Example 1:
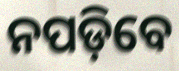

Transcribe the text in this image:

ନପଡ଼ିବେ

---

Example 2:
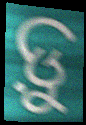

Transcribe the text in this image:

ଡ଼ୁ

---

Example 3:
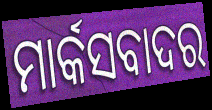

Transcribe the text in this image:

ମାର୍କସବାଦର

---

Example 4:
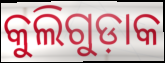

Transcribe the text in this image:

କୁଲିଗୁଡ଼ାକ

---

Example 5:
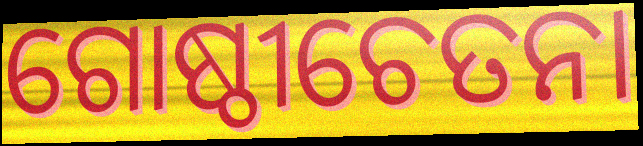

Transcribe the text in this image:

ଗୋଷ୍ଠୀଚେତନା